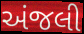
અંજલી